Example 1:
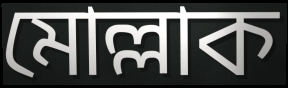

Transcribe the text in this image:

মোল্লাক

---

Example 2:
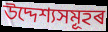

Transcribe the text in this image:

উদ্দেশ্যসমূহৰ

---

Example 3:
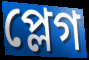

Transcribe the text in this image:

প্লেগ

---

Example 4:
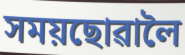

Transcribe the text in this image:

সময়ছোৱালৈ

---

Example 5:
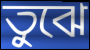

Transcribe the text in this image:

তুঝে